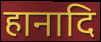
हानादि